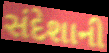
સંદેશાની